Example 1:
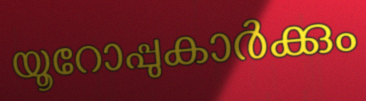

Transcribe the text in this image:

യൂറോപ്പുകാർക്കും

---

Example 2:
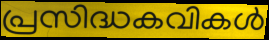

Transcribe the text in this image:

പ്രസിദ്ധകവികൾ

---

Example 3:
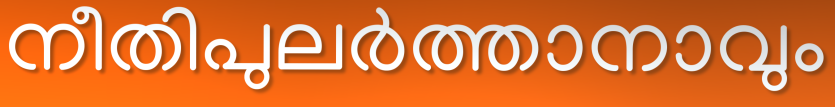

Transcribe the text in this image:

നീതിപുലർത്താനാവും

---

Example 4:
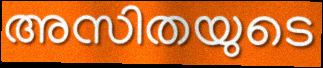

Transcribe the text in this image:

അസിതയുടെ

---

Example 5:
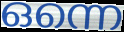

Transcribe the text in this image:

ഒന്നെ